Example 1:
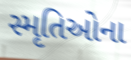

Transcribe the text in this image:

સ્મૃતિઓના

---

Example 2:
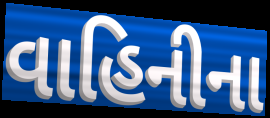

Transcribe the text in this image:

વાહિનીના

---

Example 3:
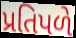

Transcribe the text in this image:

પ્રતિપળે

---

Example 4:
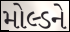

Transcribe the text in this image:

મોલ્ડને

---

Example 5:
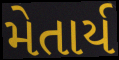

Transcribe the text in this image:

મેતાર્ય